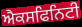
ਐਕਸਫਿਨਿਟੀ